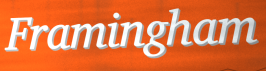
Framingham